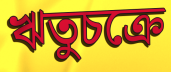
ঋতুচক্রে